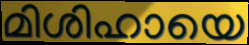
മിശിഹായെ